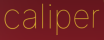
caliper